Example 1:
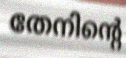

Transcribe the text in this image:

തേനിന്റെ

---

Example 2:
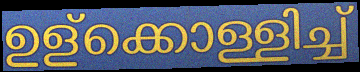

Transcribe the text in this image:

ഉള്ക്കൊള്ളിച്ച്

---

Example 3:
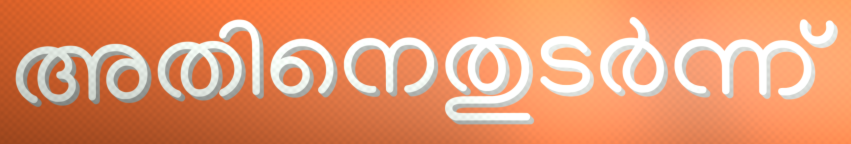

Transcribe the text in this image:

അതിനെതുടർന്ന്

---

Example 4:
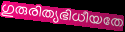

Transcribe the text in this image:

ഗുരുരിത്യഭിധീയതേ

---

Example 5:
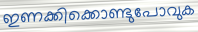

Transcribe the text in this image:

ഇണക്കിക്കൊണ്ടുപോവുക